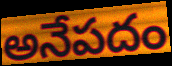
అనేపదం